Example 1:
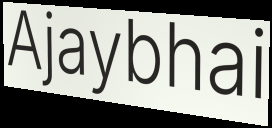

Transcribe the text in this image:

Ajaybhai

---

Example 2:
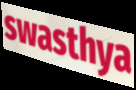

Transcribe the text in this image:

swasthya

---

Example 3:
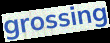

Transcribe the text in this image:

grossing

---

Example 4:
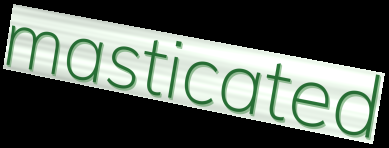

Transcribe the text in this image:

masticated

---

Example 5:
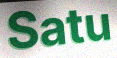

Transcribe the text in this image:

Satu